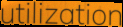
utilization